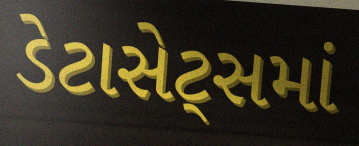
ડેટાસેટ્સમાં